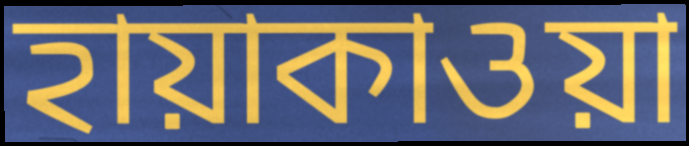
হায়াকাওয়া